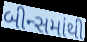
બીન્સમાંથી